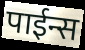
पाईन्स